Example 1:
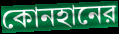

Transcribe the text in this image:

কোনহানের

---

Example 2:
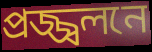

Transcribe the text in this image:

প্রজ্জ্বলনে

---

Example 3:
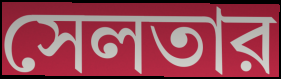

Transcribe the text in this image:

সেলতার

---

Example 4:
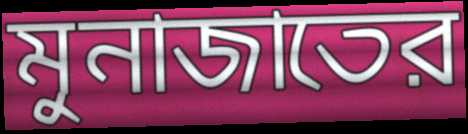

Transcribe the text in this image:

মুনাজাতের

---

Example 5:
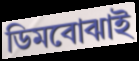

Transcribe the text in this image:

ডিমবোঝাই